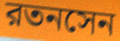
রতনসেন